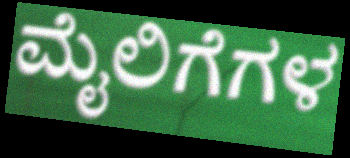
ಮೈಲಿಗೆಗಳ